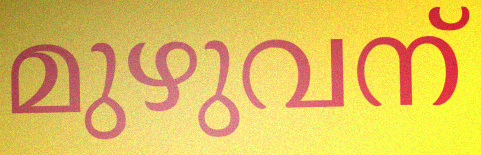
മുഴുവന്